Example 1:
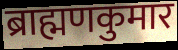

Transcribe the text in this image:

ब्राह्मणकुमार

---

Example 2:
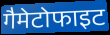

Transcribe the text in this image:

गैमेटोफाइट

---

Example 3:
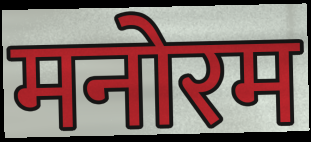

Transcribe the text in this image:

मनोरम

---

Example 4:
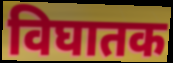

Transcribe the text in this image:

विघातक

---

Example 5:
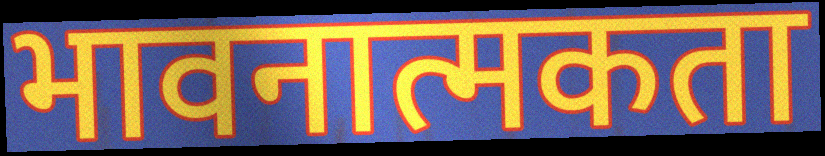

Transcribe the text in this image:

भावनात्मकता